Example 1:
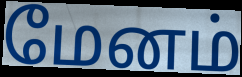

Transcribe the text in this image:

மேனம்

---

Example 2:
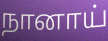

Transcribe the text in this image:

நானாய்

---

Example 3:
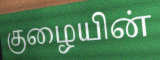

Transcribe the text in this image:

குழையின்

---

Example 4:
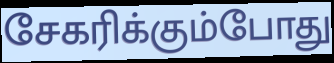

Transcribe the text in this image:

சேகரிக்கும்போது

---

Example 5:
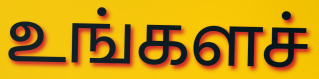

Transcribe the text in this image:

உங்களச்